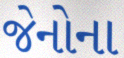
જેનોના